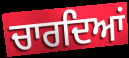
ਚਾਰਦਿਆਂ